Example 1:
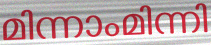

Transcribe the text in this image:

മിന്നാംമിന്നി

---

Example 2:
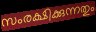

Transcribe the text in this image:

സംരക്ഷിക്കുന്നതും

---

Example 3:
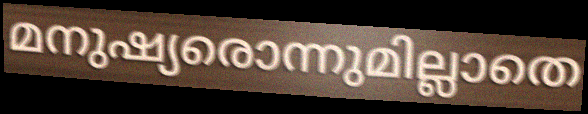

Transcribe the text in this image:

മനുഷ്യരൊന്നുമില്ലാതെ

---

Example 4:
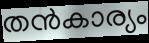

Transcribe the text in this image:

തൻകാര്യം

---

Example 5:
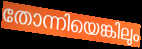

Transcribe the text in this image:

തോന്നിയെങ്കിലും